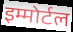
इम्मोर्टल